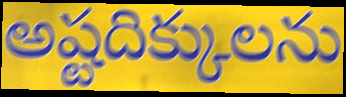
అష్టదిక్కులను